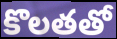
కొలతతో